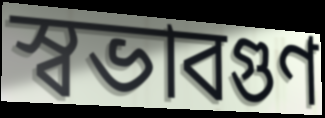
স্বভাবগুণ